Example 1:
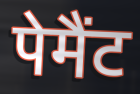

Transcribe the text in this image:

पेमैंट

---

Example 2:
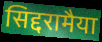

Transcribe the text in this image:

सिद्दरामैया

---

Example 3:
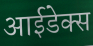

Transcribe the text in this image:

आईडेक्स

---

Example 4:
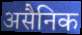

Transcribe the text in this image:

असैनिक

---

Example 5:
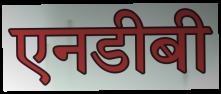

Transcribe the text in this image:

एनडीबी